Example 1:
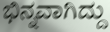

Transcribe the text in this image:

ಭಿನ್ನವಾಗಿದ್ದು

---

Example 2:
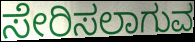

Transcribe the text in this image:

ಸೇರಿಸಲಾಗುವ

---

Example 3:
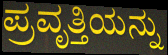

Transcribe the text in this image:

ಪ್ರವೃತ್ತಿಯನ್ನು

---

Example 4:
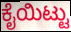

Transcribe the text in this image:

ಕೈಯಿಟ್ಟು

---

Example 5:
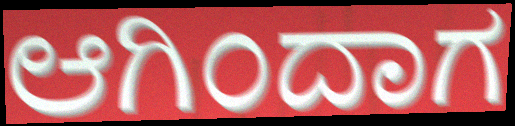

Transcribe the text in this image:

ಆಗಿಂದಾಗ